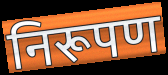
निरूपण